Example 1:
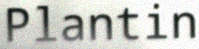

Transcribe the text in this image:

Plantin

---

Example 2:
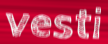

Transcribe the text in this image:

vesti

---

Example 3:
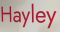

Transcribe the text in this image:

Hayley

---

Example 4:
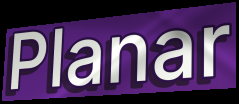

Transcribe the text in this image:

Planar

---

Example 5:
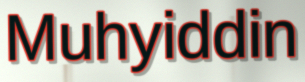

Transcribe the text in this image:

Muhyiddin